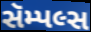
સૅમ્પલ્સ